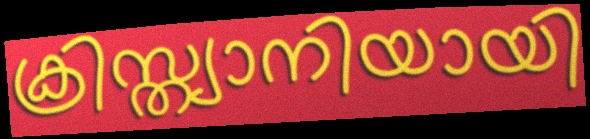
ക്രിസ്ത്യാനിയായി